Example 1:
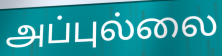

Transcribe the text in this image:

அப்புல்லை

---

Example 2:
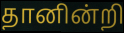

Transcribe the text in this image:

தானின்றி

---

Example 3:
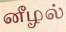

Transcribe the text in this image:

னீழல்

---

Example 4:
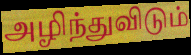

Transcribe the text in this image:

அழிந்துவிடும்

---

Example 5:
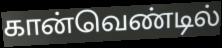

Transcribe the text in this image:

கான்வெண்டில்